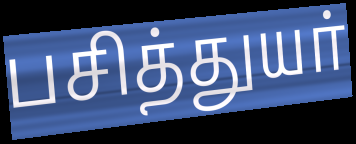
பசித்துயர்